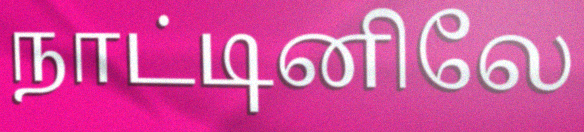
நாட்டினிலே